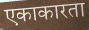
एकाकारता